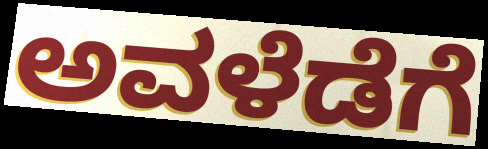
ಅವಳೆಡೆಗೆ